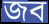
জব